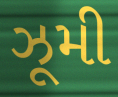
ઝૂમી